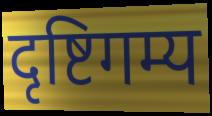
दृष्टिगम्य